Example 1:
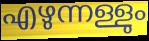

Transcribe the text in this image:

എഴുന്നള്ളും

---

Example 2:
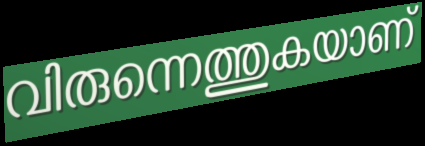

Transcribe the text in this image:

വിരുന്നെത്തുകയാണ്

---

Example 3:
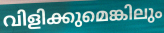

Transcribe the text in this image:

വിളിക്കുമെങ്കിലും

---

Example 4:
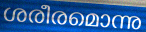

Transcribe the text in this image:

ശരീരമൊന്നു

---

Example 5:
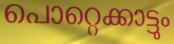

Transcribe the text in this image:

പൊറ്റെക്കാട്ടും